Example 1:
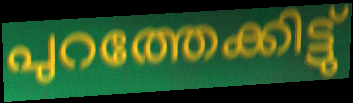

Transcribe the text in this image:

പുറത്തേക്കിട്ടു്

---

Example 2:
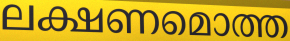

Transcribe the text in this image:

ലക്ഷണമൊത്ത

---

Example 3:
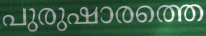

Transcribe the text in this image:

പുരുഷാരത്തെ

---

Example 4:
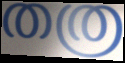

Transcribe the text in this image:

തത്ര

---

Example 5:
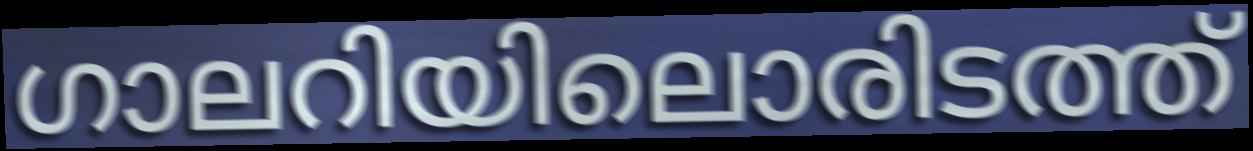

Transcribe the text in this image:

ഗാലറിയിലൊരിടത്ത്